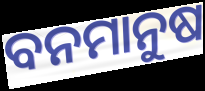
ବନମାନୁଷ